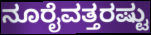
ನೂರೈವತ್ತರಷ್ಟು